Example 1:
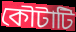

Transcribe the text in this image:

কৌটাটি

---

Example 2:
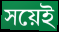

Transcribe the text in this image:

সয়েই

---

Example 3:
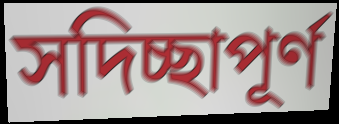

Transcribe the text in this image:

সদিচ্ছাপূর্ণ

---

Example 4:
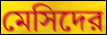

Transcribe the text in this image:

মেসিদের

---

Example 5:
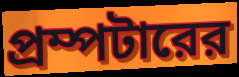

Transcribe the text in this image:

প্রম্পটারের